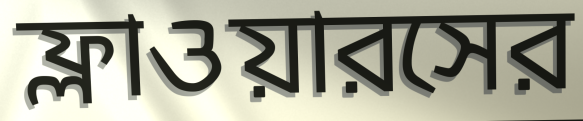
ফ্লাওয়ারসের